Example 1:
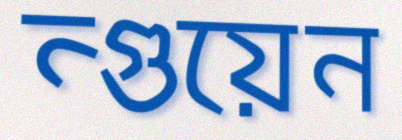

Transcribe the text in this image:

ন্গুয়েন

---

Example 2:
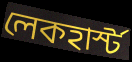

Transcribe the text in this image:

লেকহার্স্ট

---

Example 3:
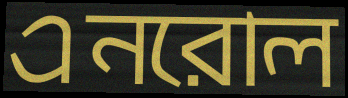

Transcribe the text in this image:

এনরোল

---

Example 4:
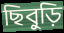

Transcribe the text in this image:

ছিবুড়ি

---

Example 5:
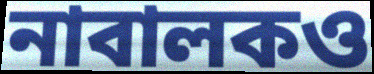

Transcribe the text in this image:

নাবালকও